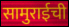
सामुराईची